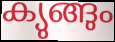
ക്യുങ്ങും